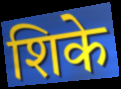
शिके